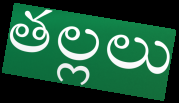
తల్లలు